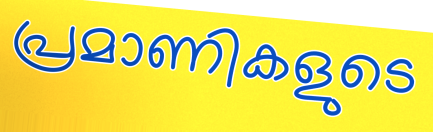
പ്രമാണികളുടെ